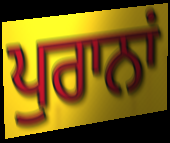
ਪੁਰਾਨਾਂ